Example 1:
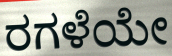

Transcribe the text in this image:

ರಗಳೆಯೇ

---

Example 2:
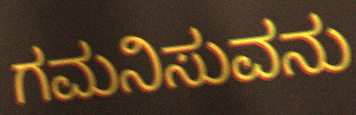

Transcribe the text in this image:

ಗಮನಿಸುವನು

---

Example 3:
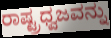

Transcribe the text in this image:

ರಾಷ್ಟ್ರಧ್ವಜವನ್ನು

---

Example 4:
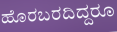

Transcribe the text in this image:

ಹೊರಬರದಿದ್ದರೂ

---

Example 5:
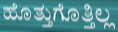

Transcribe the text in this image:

ಹೊತ್ತುಗೊತ್ತಿಲ್ಲ